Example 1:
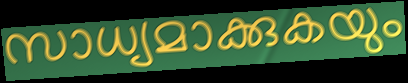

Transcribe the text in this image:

സാധ്യമാക്കുകയും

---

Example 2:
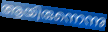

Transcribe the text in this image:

ആയിരുന്നെന്നു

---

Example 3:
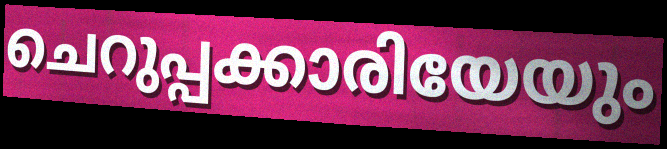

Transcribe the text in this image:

ചെറുപ്പക്കാരിയേയും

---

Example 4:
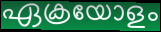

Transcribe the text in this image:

ഏക്രയോളം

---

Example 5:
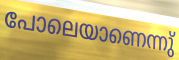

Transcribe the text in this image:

പോലെയാണെന്നു്